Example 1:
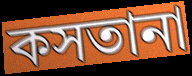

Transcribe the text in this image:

কসতানা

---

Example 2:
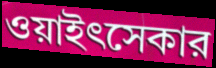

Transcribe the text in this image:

ওয়াইৎসেকার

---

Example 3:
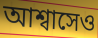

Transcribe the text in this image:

আশ্বাসেও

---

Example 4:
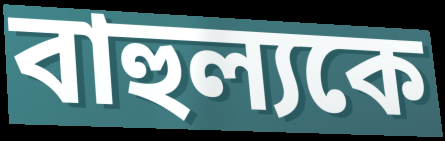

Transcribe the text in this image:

বাহুল্যকে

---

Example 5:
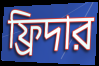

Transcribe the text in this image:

ফ্রিদার